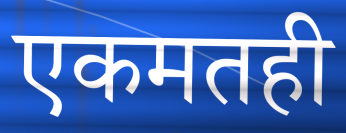
एकमतही